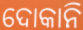
ଦୋକାନି